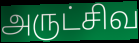
அருட்சிவ